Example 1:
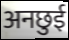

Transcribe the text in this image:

अनछुई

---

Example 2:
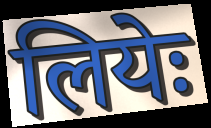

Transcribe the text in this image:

लियेः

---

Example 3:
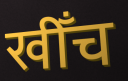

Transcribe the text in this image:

खीँच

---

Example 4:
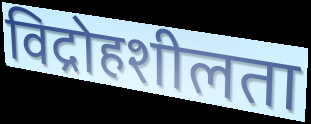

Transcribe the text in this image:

विद्रोहशीलता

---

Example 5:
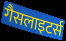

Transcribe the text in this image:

गैसलाइटर्स